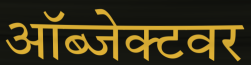
ऑब्जेक्टवर